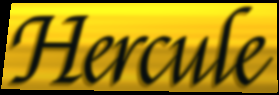
Hercule